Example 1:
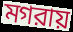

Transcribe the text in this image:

মগরায়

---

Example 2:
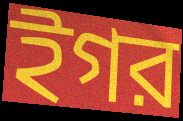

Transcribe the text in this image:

ইগর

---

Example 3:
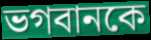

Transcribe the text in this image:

ভগবানকে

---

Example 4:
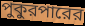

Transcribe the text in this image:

পুকুরপারের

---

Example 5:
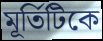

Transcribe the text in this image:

মূর্তিটিকে